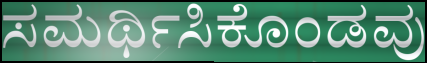
ಸಮರ್ಥಿಸಿಕೊಂಡವು